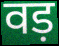
वड़